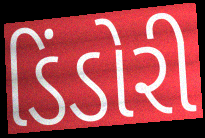
ડિંડોરી